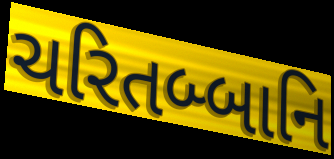
ચરિતબ્બાનિ